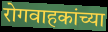
रोगवाहकांच्या